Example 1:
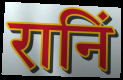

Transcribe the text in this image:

रानिं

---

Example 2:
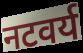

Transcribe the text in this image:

नटवर्य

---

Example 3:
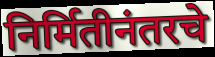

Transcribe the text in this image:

निर्मितीनंतरचे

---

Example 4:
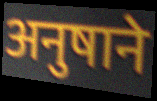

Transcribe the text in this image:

अनुषाने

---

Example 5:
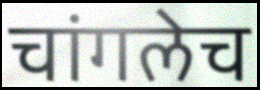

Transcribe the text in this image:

चांगलेच